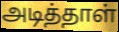
அடித்தாள்